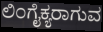
ಲಿಂಗೈಕ್ಯರಾಗುವ